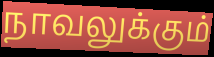
நாவலுக்கும்